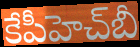
కేపీహెచ్‌బీ